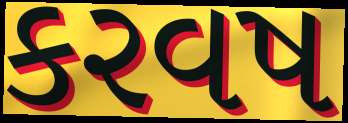
કરવષ